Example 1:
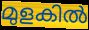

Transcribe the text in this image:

മുളകിൽ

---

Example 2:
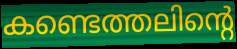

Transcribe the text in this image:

കണ്ടെത്തലിന്റെ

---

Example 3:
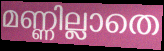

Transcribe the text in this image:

മണ്ണില്ലാതെ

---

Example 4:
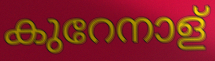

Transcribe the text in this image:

കുറേനാള്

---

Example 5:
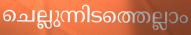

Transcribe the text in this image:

ചെല്ലുന്നിടത്തെല്ലാം